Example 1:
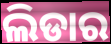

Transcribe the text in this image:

ଲିଡାର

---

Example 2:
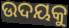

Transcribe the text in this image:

ଉଦୟକୁ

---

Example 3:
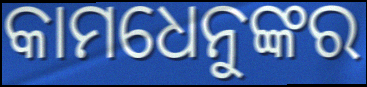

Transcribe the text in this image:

କାମଧେନୁଙ୍କର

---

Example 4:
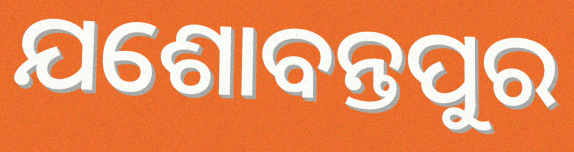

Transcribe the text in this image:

ଯଶୋବନ୍ତପୁର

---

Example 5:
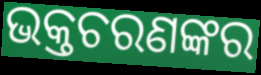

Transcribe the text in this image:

ଭକ୍ତଚରଣଙ୍କର